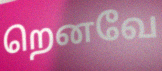
றெனவே